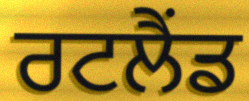
ਰਟਲੈਂਡ